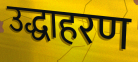
उद्धाहरण